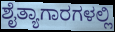
ಶೈತ್ಯಾಗಾರಗಳಲ್ಲಿ